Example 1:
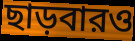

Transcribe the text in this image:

ছাড়বারও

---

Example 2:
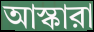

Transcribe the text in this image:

আস্কারা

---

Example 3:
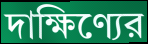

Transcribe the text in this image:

দাক্ষিণ্যের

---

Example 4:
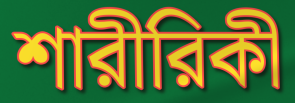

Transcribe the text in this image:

শারীরিকী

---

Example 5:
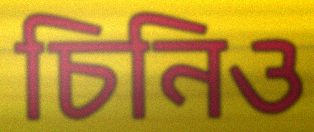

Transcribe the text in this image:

চিনিও